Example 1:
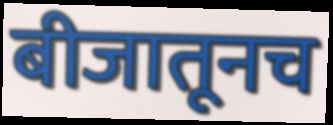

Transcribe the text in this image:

बीजातूनच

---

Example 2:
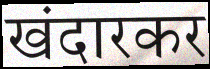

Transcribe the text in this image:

खंदारकर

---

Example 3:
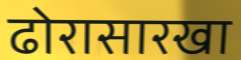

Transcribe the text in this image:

ढोरासारखा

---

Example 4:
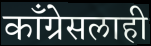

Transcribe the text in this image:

काँग्रेसलाही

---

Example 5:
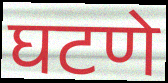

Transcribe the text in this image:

घटणे